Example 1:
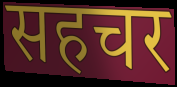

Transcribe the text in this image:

सहचर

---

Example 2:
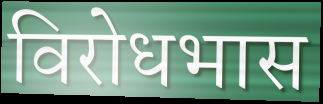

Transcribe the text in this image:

विरोधभास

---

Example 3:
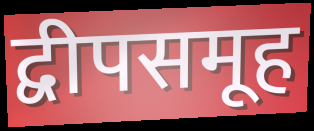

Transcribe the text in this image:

द्वीपसमूह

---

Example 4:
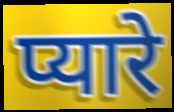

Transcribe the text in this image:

प्यारे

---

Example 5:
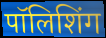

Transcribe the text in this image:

पॉलिशिंग